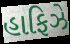
હાફિઝે